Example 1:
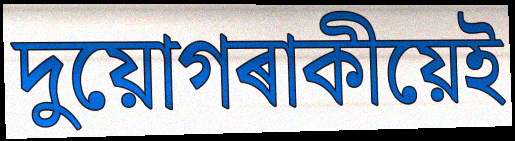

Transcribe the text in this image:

দুয়োগৰাকীয়েই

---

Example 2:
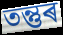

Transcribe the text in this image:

তন্তুৰ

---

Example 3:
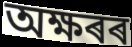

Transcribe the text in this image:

অক্ষৰৰ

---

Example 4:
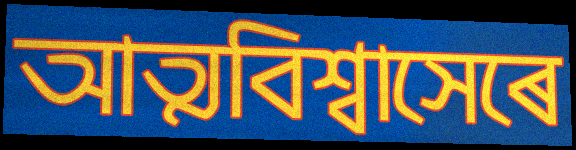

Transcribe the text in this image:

আত্মবিশ্বাসেৰে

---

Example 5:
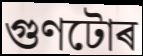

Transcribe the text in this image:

গুণটোৰ